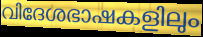
വിദേശഭാഷകളിലും